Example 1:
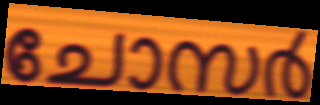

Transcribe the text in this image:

ചോസർ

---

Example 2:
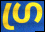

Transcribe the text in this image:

ഗ്ര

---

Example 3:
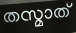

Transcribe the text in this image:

തസ്മാത്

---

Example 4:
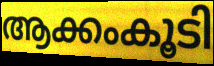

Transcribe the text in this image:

ആക്കംകൂടി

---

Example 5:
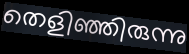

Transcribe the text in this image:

തെളിഞ്ഞിരുന്നു